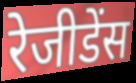
रेजीडेंस